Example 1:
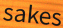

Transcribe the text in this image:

sakes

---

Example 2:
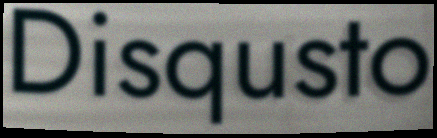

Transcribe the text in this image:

Disqusto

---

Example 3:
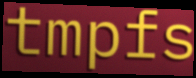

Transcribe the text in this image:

tmpfs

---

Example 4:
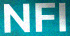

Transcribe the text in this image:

NFI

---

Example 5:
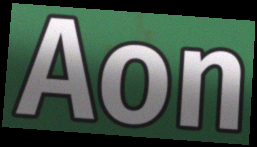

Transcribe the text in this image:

Aon